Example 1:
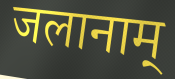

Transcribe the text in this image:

जलानाम्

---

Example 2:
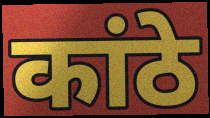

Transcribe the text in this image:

कांठे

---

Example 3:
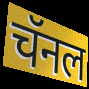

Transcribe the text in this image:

चॅनल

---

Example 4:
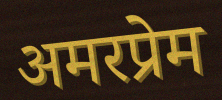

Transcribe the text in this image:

अमरप्रेम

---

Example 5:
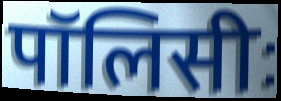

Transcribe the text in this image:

पॉलिसीः